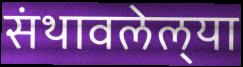
संथावलेल्या